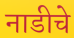
नाडीचे